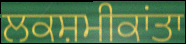
ਲਕਸ਼ਮੀਕਾਂਤਾ